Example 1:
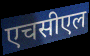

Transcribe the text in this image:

एचसीएल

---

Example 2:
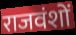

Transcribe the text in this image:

राजवंशों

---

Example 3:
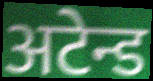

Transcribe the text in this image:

अटेन्ड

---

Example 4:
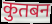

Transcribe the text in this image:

कुतबन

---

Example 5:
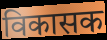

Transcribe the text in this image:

विकासक